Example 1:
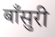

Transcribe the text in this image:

बाँसुरी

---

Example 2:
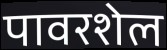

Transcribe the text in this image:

पावरशेल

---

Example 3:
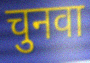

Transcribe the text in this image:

चुनवा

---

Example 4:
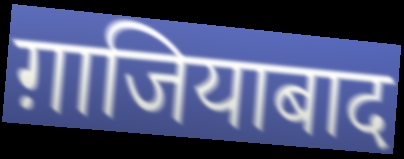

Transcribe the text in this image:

ग़ाजियाबाद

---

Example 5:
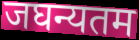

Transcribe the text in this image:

जघन्यतम